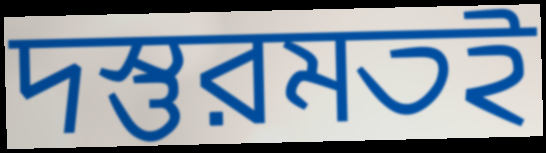
দস্তুরমতই